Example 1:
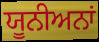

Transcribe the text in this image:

ਯੂਨੀਅਨਾਂ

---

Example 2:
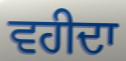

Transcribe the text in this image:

ਵਹੀਦਾ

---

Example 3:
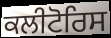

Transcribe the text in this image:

ਕਲੀਟੋਰਿਸ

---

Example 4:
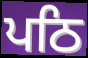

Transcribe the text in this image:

ਪਠਿ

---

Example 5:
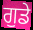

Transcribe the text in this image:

ਗੁਡੇ